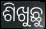
ଶିଖୁଛୁ